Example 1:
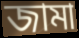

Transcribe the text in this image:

জামা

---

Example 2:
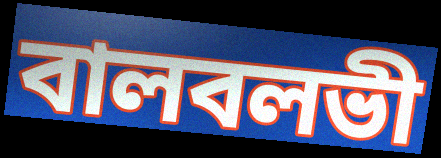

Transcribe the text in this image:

বালবলভী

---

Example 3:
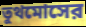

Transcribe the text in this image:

তুথমোসের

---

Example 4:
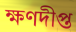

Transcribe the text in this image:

ক্ষণদীপ্ত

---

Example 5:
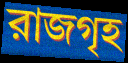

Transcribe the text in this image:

রাজগৃহ